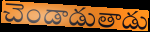
చెండాడుతాడు